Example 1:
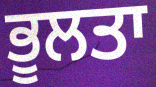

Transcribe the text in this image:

ਭੂਲਤਾ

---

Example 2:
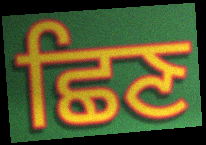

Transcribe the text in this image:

ਛਿਣ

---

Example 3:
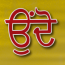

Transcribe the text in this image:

ਉਂਦੋ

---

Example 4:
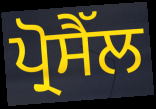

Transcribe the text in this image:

ਪ੍ਰੋਸੈੱਲ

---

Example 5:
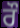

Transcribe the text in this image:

ਰੌ